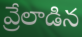
వ్రేలాడిన